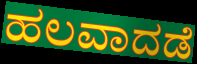
ಹಲವಾದಡೆ